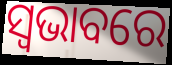
ସ୍ବଭାବରେ